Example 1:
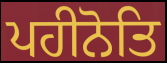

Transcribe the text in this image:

ਪਹੀਨੋਤਿ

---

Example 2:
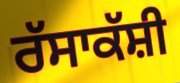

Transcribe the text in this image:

ਰੱਸਾਕੱਸ਼ੀ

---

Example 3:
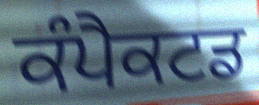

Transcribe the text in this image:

ਕੰਪੈਕਟਡ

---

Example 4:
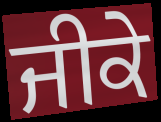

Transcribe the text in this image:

ਜੀਕੇ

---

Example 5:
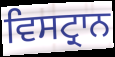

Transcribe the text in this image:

ਵਿਸਟ੍ਰਾਨ